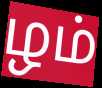
ழம்